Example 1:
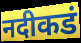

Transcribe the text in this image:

नदीकडं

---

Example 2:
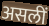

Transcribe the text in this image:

असलीं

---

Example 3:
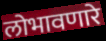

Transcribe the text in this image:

लोभावणारे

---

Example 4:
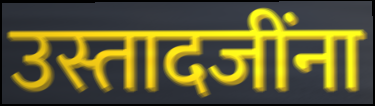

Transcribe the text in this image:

उस्तादजींना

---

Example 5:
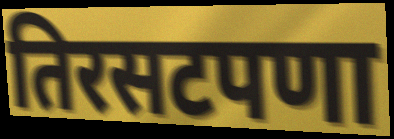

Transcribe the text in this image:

तिरसटपणा